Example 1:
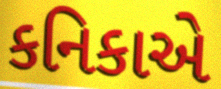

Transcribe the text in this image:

કનિકાએ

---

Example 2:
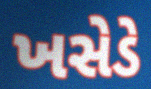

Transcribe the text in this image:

ખસેડે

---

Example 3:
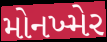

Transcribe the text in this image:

મોનખ્મેર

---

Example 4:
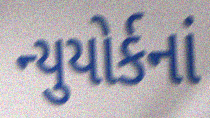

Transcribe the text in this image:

ન્યુયોર્કનાં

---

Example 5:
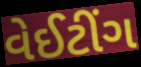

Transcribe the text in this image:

વેઈટીંગ